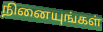
நினையுங்கள்